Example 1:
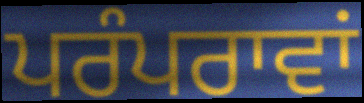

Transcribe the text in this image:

ਪਰੰਪਰਾਵਾਂ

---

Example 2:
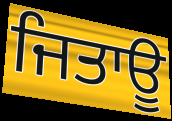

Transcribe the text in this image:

ਜਿਤਾਊ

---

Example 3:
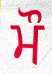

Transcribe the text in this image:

ਮੌ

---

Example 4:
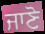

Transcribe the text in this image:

ਜਾਣੋ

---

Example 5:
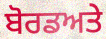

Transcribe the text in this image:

ਬੋਰਡਅਤੇ